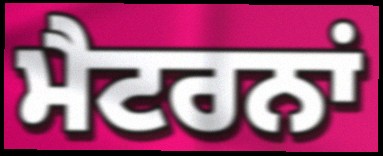
ਮੈਟਰਨਾਂ